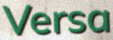
Versa